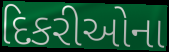
દિકરીઓના